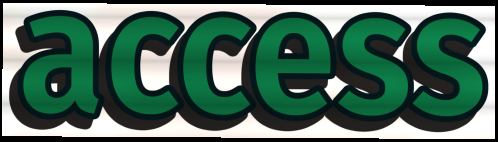
access